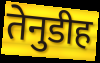
तेनुडीह